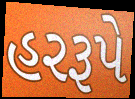
હરરૂપે